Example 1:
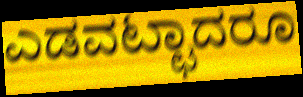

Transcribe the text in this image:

ಎಡವಟ್ಟಾದರೂ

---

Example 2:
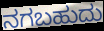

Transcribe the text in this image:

ನಗಬಹುದು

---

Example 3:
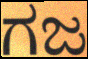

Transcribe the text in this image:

ಗಜ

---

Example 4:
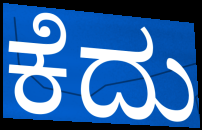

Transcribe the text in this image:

ಕೆದು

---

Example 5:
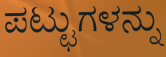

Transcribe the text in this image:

ಪಟ್ಟುಗಳನ್ನು